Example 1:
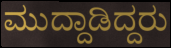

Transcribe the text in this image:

ಮುದ್ದಾಡಿದ್ದರು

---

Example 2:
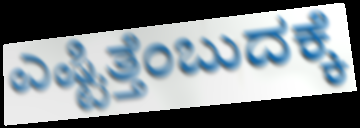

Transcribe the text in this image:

ಎಷ್ಟಿತ್ತೆಂಬುದಕ್ಕೆ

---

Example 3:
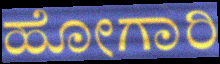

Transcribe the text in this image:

ಹೋಗಾರಿ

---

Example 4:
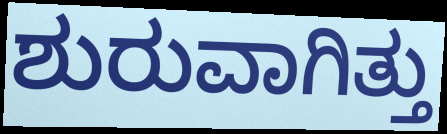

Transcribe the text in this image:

ಶುರುವಾಗಿತ್ತು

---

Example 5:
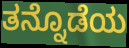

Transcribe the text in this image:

ತನ್ನೊಡೆಯ